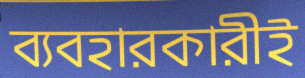
ব্যবহারকারীই